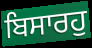
ਬਿਸਾਰਹੁ